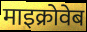
माइक्रोवेब